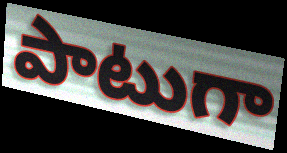
పాటుగా